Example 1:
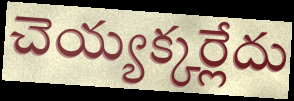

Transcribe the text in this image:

చెయ్యక్కర్లేదు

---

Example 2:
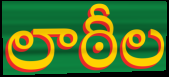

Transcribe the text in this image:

లాఠీల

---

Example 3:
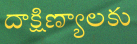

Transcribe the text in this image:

దాక్షిణ్యాలకు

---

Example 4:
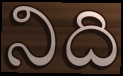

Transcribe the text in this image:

నిది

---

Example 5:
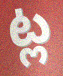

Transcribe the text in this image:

ట్ల